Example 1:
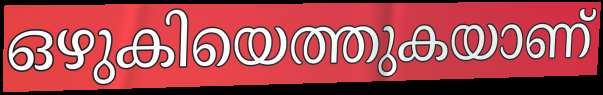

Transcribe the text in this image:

ഒഴുകിയെത്തുകയാണ്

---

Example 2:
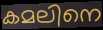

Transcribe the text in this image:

കമലിനെ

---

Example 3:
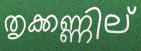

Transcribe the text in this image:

തൃക്കണ്ണില്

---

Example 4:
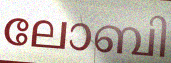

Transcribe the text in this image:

ലോബി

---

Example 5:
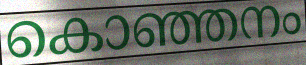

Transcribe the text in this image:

കൊഞ്ഞനം